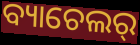
ବ୍ୟାଚେଲର୍